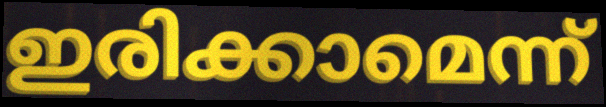
ഇരിക്കാമെന്ന്